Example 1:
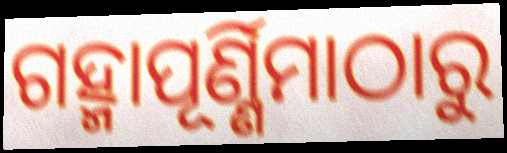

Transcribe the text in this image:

ଗହ୍ମାପୂର୍ଣ୍ଣିମାଠାରୁ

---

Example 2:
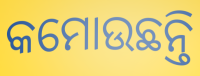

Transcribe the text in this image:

କମୋଉଛନ୍ତି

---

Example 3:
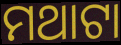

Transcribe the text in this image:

ମଥାଟା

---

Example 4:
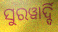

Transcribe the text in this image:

ସୁରୱାର୍ଦ୍ଦି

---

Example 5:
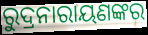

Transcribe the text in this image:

ରୁଦ୍ରନାରାୟଣଙ୍କର